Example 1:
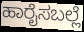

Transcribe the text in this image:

ಹಾರೈಸಬಲ್ಲೆ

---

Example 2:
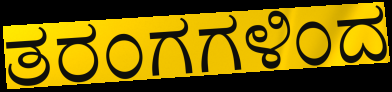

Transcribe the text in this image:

ತರಂಗಗಳಿಂದ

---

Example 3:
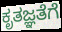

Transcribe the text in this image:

ಕೃತಜ್ಞತೆಗೆ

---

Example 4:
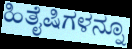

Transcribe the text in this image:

ಹಿತೈಷಿಗಳನ್ನೂ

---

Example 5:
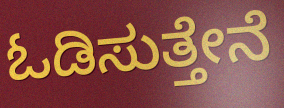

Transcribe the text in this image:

ಓಡಿಸುತ್ತೇನೆ